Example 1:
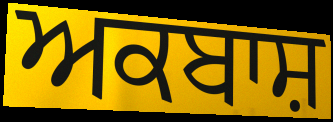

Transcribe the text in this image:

ਅਕਬਾਸ਼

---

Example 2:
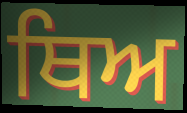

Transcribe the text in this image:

ਥਿਅ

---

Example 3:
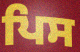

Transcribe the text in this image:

ਪਿਸ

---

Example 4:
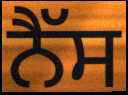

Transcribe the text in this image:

ਨੈੱਸ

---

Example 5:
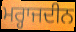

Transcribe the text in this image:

ਮਰ੍ਹਾਜਦੀਨ